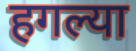
हगल्या